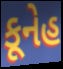
કૂનેહ